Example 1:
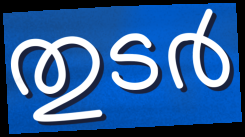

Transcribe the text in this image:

തുടർ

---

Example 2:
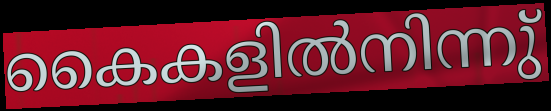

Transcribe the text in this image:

കൈകളിൽനിന്നു്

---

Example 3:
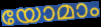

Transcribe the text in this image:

യോമാം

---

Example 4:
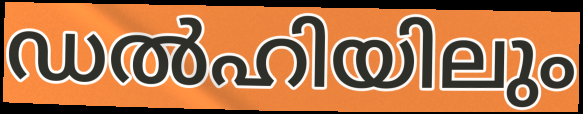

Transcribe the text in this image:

ഡൽഹിയിലും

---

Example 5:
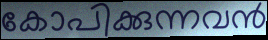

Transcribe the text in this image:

കോപിക്കുന്നവൻ